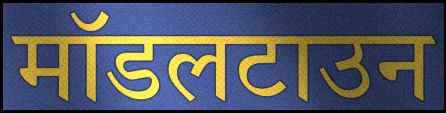
मॉडलटाउन